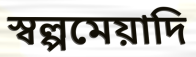
স্বল্পমেয়াদি